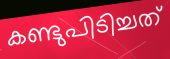
കണ്ടുപിടിച്ചത്